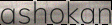
ashokan